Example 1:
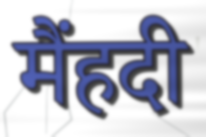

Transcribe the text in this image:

मैंहदी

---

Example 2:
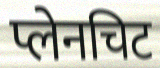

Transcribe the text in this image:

प्लेनचिट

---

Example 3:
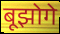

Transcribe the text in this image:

बूझोगे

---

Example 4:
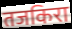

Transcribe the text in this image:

तजकिरा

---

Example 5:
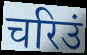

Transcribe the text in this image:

चरिउं